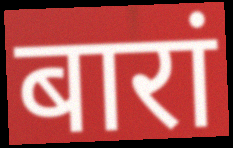
बारां